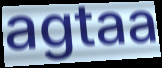
agtaa